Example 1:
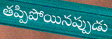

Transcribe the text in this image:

తప్పిపోయినప్పుడు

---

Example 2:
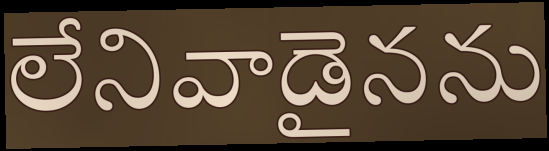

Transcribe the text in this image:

లేనివాడైనను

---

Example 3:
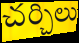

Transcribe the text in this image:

చర్చిలు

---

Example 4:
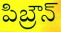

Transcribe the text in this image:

పిబ్రౌన్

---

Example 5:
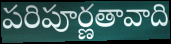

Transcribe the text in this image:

పరిపూర్ణతావాది